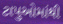
ટાપુઓમાંથી